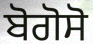
ਬੋਗੋਸੋ